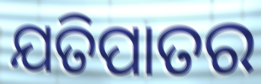
ଯତିପାତର